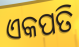
ଏକପତି